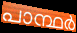
പാന്ഥർ